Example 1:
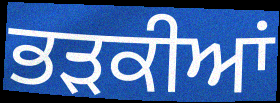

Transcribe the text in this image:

ਭੜਕੀਆਂ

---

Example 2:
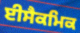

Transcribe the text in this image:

ਈਸੈਕਮਿਕ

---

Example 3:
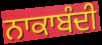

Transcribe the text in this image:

ਨਾਕਾਬੰਦੀ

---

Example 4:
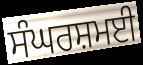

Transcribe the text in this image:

ਸੰਘਰਸ਼ਮਈ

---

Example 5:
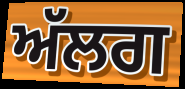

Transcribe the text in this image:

ਅੱਲਗ